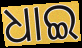
ଧାଇ